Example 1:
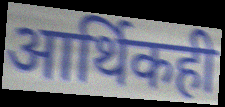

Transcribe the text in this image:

आर्थिकही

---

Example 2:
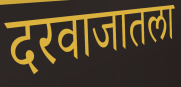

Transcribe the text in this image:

दरवाजातला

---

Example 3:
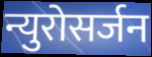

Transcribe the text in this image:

न्युरोसर्जन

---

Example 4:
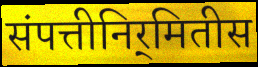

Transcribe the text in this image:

संपत्तीनिर्मितीस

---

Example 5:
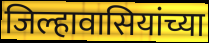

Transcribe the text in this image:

जिल्हावासियांच्या